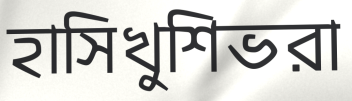
হাসিখুশিভরা